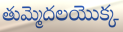
తుమ్మెదలయొక్క